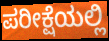
ಪರೀಕ್ಷೆಯಲ್ಲಿ